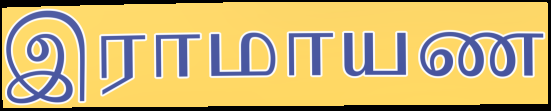
இராமாயண